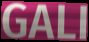
GALI